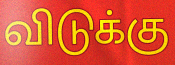
விடுக்கு